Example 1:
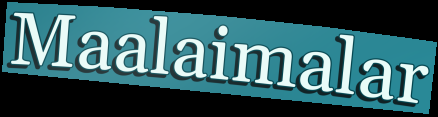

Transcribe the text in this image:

Maalaimalar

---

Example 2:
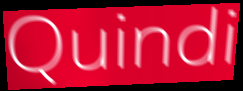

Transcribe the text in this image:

Quindi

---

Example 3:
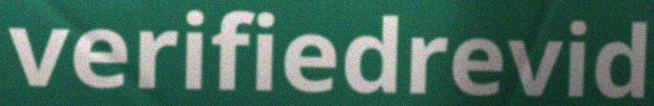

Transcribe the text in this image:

verifiedrevid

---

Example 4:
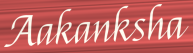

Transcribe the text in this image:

Aakanksha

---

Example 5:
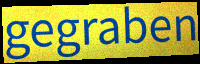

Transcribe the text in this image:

gegraben